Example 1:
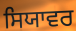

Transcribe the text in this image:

ਸਿਯਾਵਰ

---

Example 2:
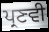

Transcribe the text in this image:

ਪ੍ਰਣਵੀ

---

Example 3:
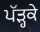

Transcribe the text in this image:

ਪੱੜ੍ਹਕੇ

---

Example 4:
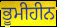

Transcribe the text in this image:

ਭੂਮੀਹੀਨ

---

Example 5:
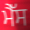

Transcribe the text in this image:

ਮੈੱਸ